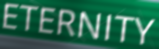
ETERNITY